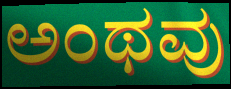
ಅಂಥವು